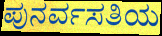
ಪುನರ್ವಸತಿಯ